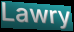
Lawry